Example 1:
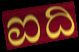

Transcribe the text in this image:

ಐದಿ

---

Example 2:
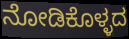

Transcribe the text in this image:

ನೋಡಿಕೊಳ್ಳದ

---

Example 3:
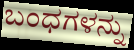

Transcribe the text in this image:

ಬಂಧಗಳನ್ನು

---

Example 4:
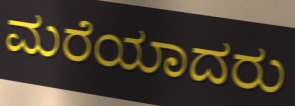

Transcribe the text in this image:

ಮರೆಯಾದರು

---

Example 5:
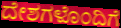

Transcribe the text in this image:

ದೇಶಗಳೊಂದಿಗೆ